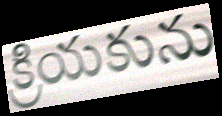
క్రియకును